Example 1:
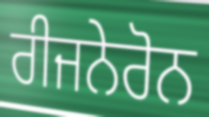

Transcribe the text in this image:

ਰੀਜਨੇਰੋਨ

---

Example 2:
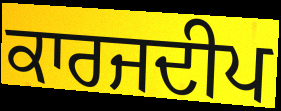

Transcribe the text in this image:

ਕਾਰਜਦੀਪ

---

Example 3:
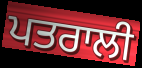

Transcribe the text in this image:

ਪਤਰਾਲੀ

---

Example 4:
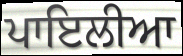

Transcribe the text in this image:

ਪਾਇਲੀਆ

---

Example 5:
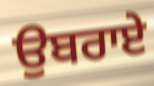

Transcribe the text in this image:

ਉਬਰਾਏ